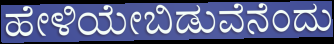
ಹೇಳಿಯೇಬಿಡುವೆನೆಂದು